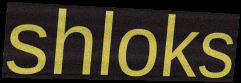
shloks